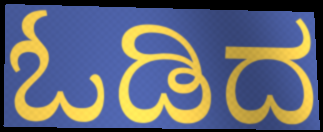
ಓಡಿದ